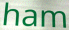
ham